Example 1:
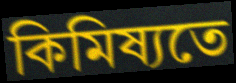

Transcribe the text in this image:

কিমিষ্যতে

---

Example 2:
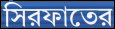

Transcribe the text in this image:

সিরফাতের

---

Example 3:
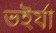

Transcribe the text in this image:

ভইর্যা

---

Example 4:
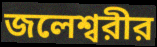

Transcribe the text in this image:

জলেশ্বরীর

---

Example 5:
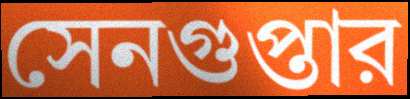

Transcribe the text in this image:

সেনগুপ্তার